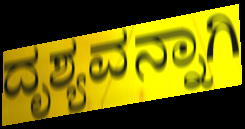
ದೃಶ್ಯವನ್ನಾಗಿ